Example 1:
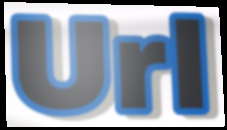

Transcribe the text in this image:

Url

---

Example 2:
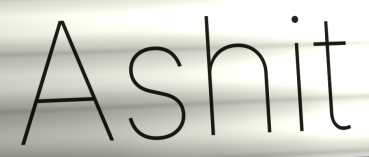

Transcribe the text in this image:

Ashit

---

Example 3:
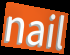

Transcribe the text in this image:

nail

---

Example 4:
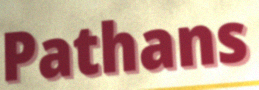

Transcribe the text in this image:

Pathans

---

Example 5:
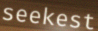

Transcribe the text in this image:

seekest